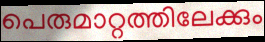
പെരുമാറ്റത്തിലേക്കും